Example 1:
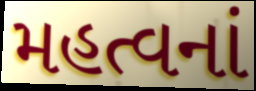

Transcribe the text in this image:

મહત્વનાં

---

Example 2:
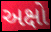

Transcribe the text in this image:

અક્ષો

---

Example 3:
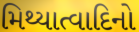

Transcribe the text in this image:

મિથ્યાત્વાદિનો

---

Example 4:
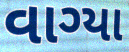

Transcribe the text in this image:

વાગ્યા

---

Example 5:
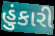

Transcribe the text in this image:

હુંકારી